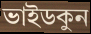
ভাইডকুন